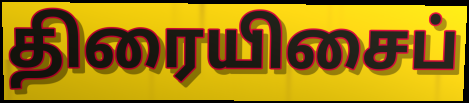
திரையிசைப்